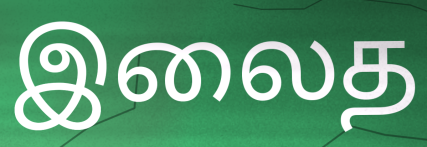
இலைத